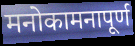
मनोकामनापूर्ण